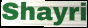
Shayri